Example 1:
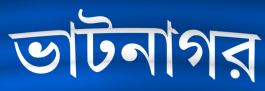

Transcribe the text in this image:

ভাটনাগর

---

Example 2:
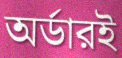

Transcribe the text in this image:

অর্ডারই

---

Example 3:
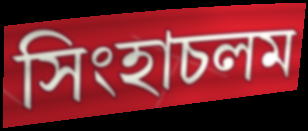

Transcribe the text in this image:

সিংহাচলম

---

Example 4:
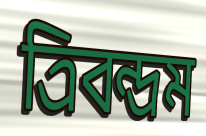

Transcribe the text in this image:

ত্রিবন্দ্রম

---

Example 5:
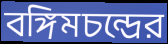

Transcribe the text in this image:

বঙ্গিমচন্দ্রের